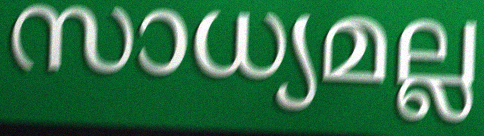
സാധ്യമല്ല